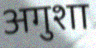
अगुशा